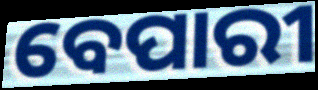
ବେପାରୀ